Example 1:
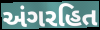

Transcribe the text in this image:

અંગરહિત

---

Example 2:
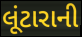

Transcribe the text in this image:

લૂંટારાની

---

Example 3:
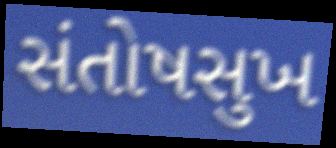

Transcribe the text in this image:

સંતોષસુખ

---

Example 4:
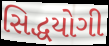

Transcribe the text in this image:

સિદ્ધયોગી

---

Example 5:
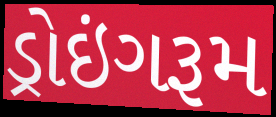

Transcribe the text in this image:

ડ્રોઇંગરૂમ